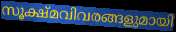
സൂക്ഷ്മവിവരങ്ങളുമായി